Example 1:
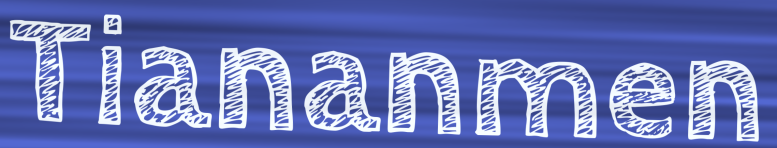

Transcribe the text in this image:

Tiananmen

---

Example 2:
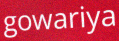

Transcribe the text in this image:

gowariya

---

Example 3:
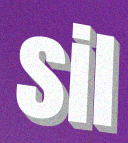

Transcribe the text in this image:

sil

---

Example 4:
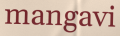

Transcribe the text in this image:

mangavi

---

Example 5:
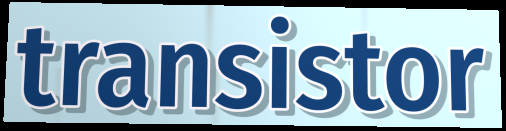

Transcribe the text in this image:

transistor